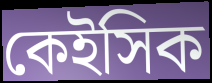
কেইসিক